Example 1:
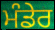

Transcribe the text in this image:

ਮੰਡੇਰ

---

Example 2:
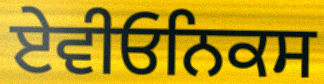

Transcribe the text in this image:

ਏਵੀਓਨਿਕਸ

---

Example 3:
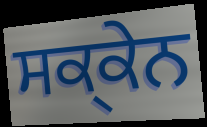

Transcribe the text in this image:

ਸਕ੍ਕੇਨ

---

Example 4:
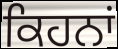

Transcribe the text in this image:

ਕਿਹਨਾਂ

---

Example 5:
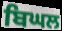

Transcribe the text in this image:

ਬਿਘਲ